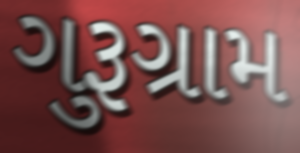
ગુરૂગ્રામ